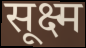
सूक्ष्‍म